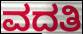
ವದತಿ